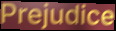
Prejudice